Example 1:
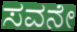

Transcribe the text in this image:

ಸವನೇ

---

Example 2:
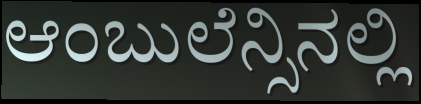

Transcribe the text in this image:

ಆಂಬುಲೆನ್ಸಿನಲ್ಲಿ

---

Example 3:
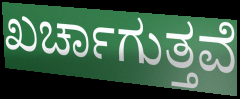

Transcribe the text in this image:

ಖರ್ಚಾಗುತ್ತವೆ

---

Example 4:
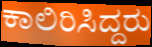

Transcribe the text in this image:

ಕಾಲಿರಿಸಿದ್ದರು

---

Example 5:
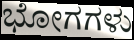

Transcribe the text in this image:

ಭೋಗಗಳು